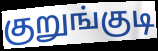
குறுங்குடி